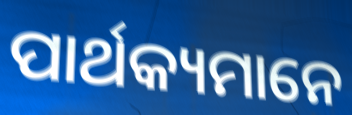
ପାର୍ଥକ୍ୟମାନେ